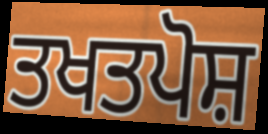
ਤਖਤਪੋਸ਼